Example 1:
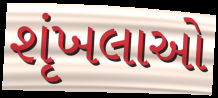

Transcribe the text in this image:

શૃંખલાઓ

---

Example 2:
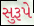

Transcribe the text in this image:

સુરૂપે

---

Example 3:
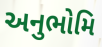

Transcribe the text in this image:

અનુભોમિ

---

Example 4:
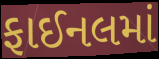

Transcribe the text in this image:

ફાઈનલમાં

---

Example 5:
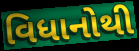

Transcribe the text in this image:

વિધાનોથી